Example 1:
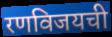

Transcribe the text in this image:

रणविजयची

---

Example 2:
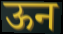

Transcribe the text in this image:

ऊन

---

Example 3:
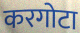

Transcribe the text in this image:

करगोटा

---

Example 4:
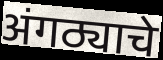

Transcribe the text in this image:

अंगठ्याचे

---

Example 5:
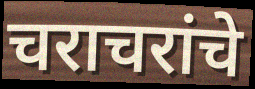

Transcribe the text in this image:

चराचरांचे